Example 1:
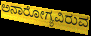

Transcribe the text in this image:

ಅನಾರೋಗ್ಯವಿರುವ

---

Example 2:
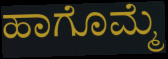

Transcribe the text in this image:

ಹಾಗೊಮ್ಮೆ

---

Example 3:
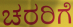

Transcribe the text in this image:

ಚರರಿಗೆ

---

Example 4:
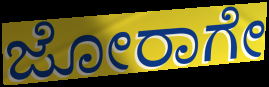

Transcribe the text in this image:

ಜೋರಾಗೇ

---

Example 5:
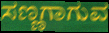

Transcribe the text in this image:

ಸಣ್ಣಗಾಗುವ